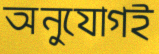
অনুযোগই